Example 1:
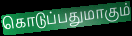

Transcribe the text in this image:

கொடுப்பதுமாகும்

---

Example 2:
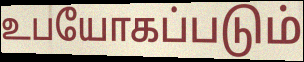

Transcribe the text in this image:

உபயோகப்படும்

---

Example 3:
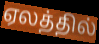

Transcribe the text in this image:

ஏலத்தில்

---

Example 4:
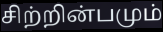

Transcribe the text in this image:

சிற்றின்பமும்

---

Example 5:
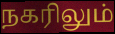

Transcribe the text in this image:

நகரிலும்